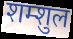
शम्शुल